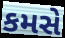
કમસે